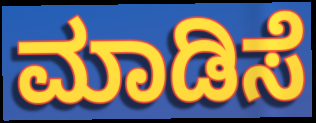
ಮಾಡಿಸೆ